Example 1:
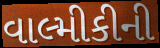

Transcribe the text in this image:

વાલ્મીકીની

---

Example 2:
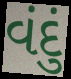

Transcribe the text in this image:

વંદું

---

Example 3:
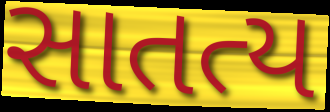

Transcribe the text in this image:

સાતત્ય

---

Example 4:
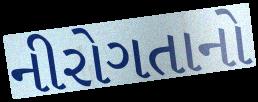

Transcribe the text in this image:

નીરોગતાનો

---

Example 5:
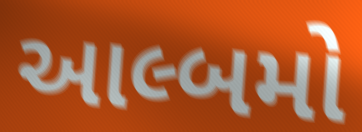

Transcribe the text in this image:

આલ્બમો